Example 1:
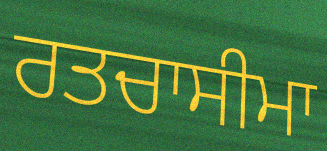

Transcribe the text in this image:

ਰਤਚਾਸੀਮਾ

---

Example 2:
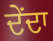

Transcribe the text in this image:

ਦੇਂਦਾ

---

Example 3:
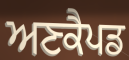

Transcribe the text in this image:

ਅਣਕੈਪਡ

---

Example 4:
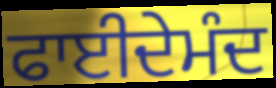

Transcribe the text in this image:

ਫਾਈਦੇਮੰਦ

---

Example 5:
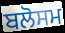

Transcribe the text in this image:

ਬਲੋਸਮ